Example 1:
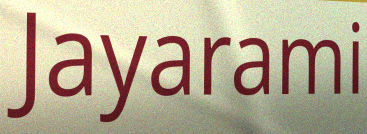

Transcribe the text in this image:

Jayarami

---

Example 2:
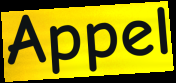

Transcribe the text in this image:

Appel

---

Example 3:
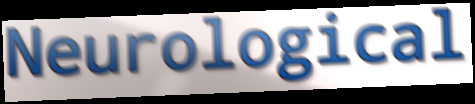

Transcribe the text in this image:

Neurological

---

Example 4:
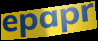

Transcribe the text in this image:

epapr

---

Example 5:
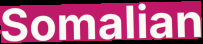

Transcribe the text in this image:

Somalian